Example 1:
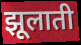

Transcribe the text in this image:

झूलाती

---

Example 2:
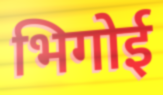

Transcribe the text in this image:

भिगोई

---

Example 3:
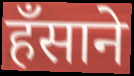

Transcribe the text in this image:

हँसाने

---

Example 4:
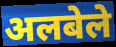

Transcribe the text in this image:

अलबेले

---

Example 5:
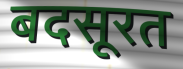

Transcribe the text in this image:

बदसूरत